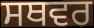
ਸਥਵਰ